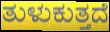
ತುಳುಕುತ್ತದೆ